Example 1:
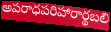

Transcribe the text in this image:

అపరాధపరిహారార్థబలి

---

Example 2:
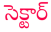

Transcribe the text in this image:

సెక్టార్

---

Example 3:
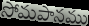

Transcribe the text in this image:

సోమపానము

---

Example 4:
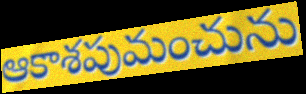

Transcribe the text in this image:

ఆకాశపుమంచును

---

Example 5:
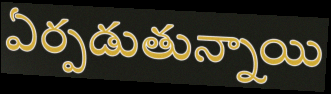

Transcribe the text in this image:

ఏర్పడుతున్నాయి